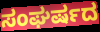
ಸಂಘರ್ಷದ